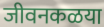
जीवनकळया